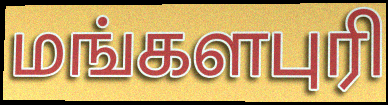
மங்களபுரி